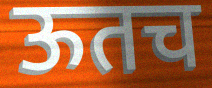
ऊतच